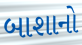
બાશાનો